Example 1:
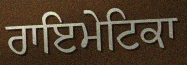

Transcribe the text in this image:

ਰਾਇਮੇਟਿਕਾ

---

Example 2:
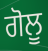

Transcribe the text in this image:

ਗੋਲੂ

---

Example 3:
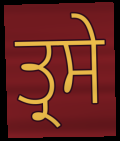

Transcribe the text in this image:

ਤ੍ਰਸੇ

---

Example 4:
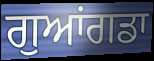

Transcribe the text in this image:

ਗੁਆਂਗਡਾ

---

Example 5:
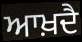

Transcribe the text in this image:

ਆਖ਼ਦੈ